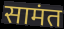
सामंत